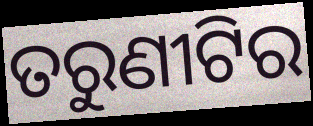
ତରୁଣୀଟିର